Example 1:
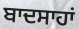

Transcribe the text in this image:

ਬਾਦਸਾਹਾਂ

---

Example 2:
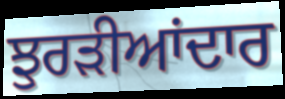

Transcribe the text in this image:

ਝੁਰੜੀਆਂਦਾਰ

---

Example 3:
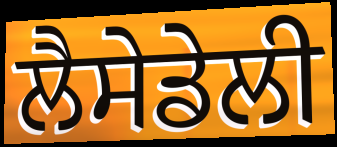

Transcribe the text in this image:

ਲੈਸੇਡੇਲੀ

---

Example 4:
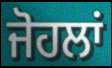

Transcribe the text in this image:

ਜੋਹਲਾਂ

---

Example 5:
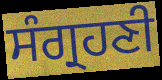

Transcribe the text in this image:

ਸੰਗ੍ਰਹਣੀ